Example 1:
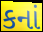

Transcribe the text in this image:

કનાં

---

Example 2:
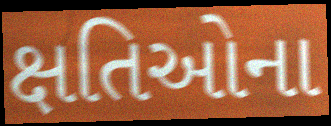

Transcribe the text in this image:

ક્ષતિઓના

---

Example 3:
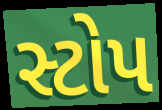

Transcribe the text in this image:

સ્ટોપ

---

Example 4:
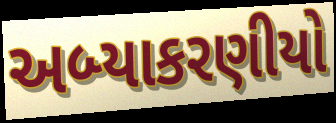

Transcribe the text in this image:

અબ્યાકરણીયો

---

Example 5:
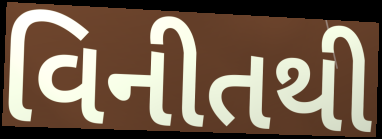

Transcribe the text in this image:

વિનીતથી